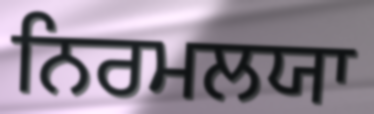
ਨਿਰਮਲਯਾ